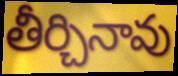
తీర్చినావు